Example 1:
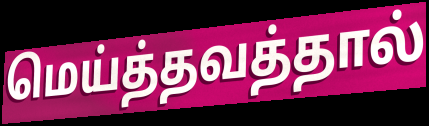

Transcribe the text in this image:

மெய்த்தவத்தால்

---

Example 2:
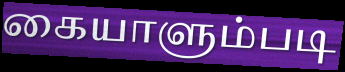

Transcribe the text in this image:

கையாளும்படி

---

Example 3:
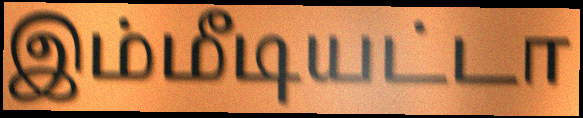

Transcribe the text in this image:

இம்மீடியட்டா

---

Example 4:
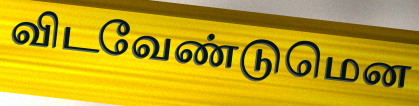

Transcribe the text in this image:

விடவேண்டுமென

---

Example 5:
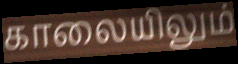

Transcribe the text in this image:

காலையிலும்